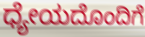
ಧ್ಯೇಯದೊಂದಿಗೆ